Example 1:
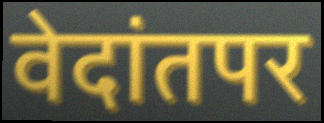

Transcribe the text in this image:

वेदांतपर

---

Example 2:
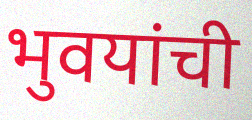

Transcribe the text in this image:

भुवयांची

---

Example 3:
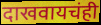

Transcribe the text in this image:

दाखवायचंही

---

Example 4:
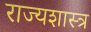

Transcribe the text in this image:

राज्यशास्त्र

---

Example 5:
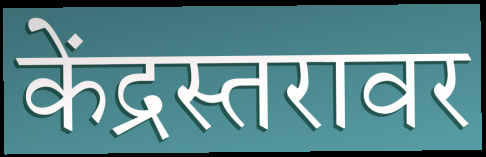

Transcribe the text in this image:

केंद्रस्तरावर